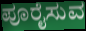
ಪೂರೈಸುವ